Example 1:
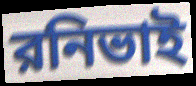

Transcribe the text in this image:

রনিভাই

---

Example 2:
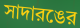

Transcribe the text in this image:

সাদারঙের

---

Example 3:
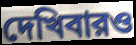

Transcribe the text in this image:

দেখিবারও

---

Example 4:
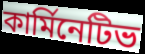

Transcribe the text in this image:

কার্মিনেটিভ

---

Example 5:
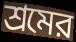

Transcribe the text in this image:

শ্রমের